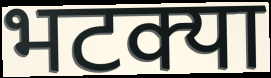
भटक्या